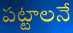
పట్టాలనే